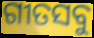
ଗୀତସବୁ